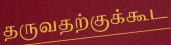
தருவதற்குக்கூட